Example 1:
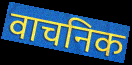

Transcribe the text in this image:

वाचनिक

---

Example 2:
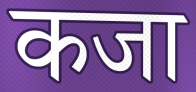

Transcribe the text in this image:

कजा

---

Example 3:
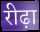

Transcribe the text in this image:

रीढ़ा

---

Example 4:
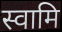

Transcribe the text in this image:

स्वामि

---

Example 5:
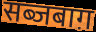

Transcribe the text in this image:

सब्जबाग़